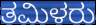
ತಮಿಳರು